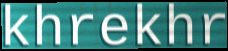
khrekhr